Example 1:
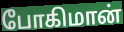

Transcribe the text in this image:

போகிமான்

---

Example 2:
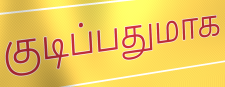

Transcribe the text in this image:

குடிப்பதுமாக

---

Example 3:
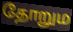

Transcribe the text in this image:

தோறும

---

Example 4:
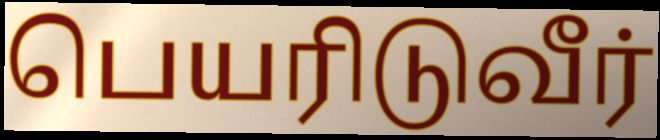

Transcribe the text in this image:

பெயரிடுவீர்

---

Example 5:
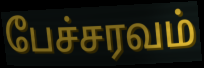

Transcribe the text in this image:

பேச்சரவம்